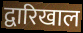
द्वारिखाल